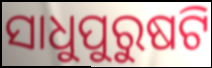
ସାଧୁପୁରୁଷଟି